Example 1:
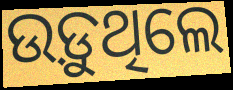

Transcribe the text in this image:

ଉଡ଼ୁଥିଲେ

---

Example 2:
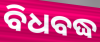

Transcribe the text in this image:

ବିଧବଦ୍ଧ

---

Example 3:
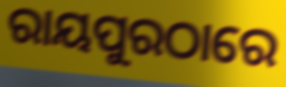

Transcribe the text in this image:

ରାୟପୁରଠାରେ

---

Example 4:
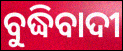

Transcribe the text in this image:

ବୁଦ୍ଧିବାଦୀ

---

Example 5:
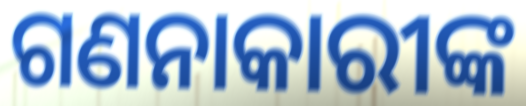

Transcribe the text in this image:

ଗଣନାକାରୀଙ୍କ